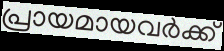
പ്രായമായവർക്ക്